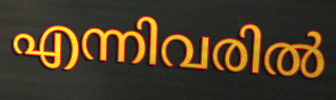
എന്നിവരിൽ